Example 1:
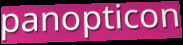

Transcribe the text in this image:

panopticon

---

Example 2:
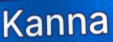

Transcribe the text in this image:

Kanna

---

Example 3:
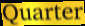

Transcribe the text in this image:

Quarter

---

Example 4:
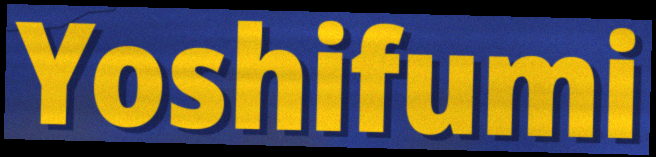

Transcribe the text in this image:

Yoshifumi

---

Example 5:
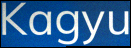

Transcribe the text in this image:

Kagyu